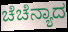
ಚೆಚೆನ್ಯಾದ